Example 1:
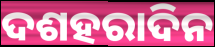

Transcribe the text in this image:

ଦଶହରାଦିନ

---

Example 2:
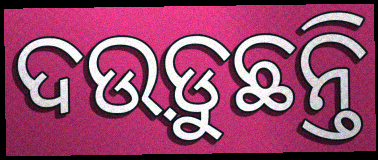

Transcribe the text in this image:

ଦଉଡ଼ୁଛନ୍ତି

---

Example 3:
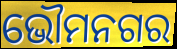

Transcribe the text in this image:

ଭୌମନଗର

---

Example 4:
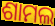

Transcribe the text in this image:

ଶାମଲ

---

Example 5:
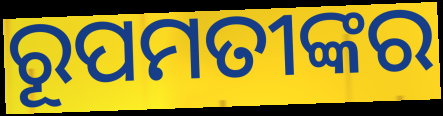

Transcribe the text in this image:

ରୂପମତୀଙ୍କର